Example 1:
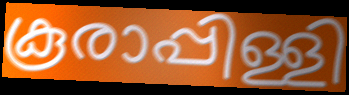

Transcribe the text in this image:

കൂരാപ്പിള്ളി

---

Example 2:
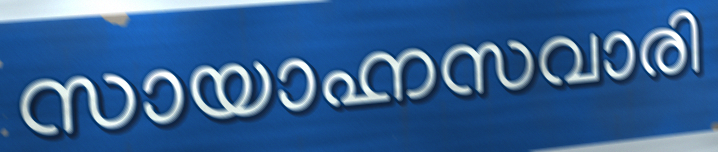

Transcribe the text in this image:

സായാഹ്നസവാരി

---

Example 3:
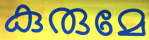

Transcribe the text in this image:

കുരുമേ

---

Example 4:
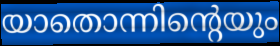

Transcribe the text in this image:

യാതൊന്നിന്റെയും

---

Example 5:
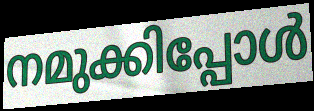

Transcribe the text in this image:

നമുക്കിപ്പോൾ